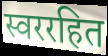
स्वररहित